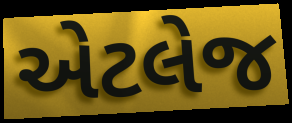
એટલેજ